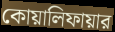
কোয়ালিফায়ার